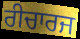
ਰੀਚਾਰਜ